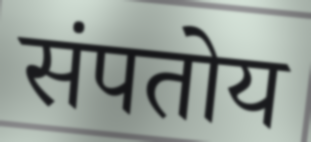
संपतोय